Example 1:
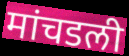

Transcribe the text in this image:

मांचडली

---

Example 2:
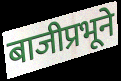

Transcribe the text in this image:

बाजीप्रभूने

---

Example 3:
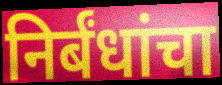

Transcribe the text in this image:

निर्बंधांचा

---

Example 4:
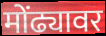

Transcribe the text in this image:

मोंढ्यावर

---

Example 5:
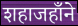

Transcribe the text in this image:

शहाजहाँने